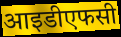
आइडीएफसी